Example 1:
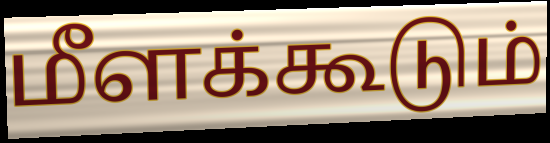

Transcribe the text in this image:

மீளக்கூடும்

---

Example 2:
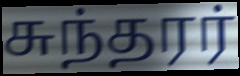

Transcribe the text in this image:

சுந்தரர்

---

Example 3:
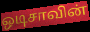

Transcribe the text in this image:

ஒடிசாவின்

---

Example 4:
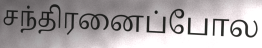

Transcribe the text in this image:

சந்திரனைப்போல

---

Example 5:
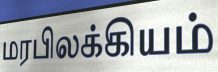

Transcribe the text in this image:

மரபிலக்கியம்